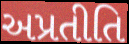
અપ્રતીતિ